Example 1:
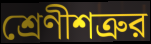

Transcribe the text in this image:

শ্রেণীশত্রুর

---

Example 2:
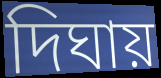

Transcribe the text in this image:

দিঘায়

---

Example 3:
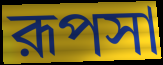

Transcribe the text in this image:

রূপসা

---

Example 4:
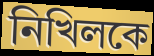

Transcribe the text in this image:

নিখিলকে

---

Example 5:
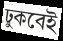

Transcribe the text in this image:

ঢুকবেই